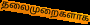
தலைமுறைகளாக